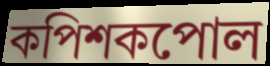
কপিশকপোল